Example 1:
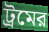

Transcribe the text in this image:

ট্রমের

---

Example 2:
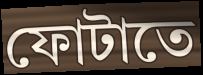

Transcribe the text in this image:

ফোটাতে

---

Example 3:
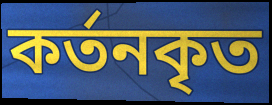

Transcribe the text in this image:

কর্তনকৃত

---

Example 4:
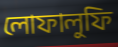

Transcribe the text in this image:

লোফালুফি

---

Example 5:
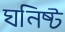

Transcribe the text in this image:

ঘনিষ্ট